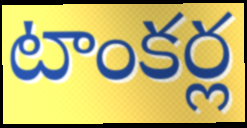
టాంకర్ల